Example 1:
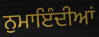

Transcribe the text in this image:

ਨੁਮਾਇੰਦੀਆਂ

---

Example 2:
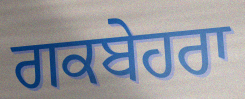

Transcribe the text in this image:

ਗਕਬੇਹਰਾ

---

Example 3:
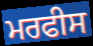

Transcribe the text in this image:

ਮਰਫੀਸ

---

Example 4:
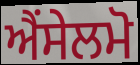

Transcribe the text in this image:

ਐਂਸੇਲਮੋ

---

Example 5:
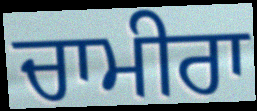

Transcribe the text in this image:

ਚਾਮੀਰਾ